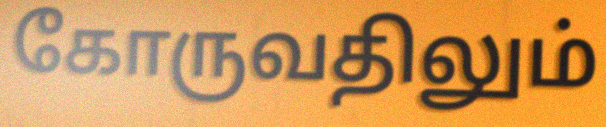
கோருவதிலும்